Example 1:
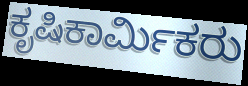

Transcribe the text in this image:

ಕೃಷಿಕಾರ್ಮಿಕರು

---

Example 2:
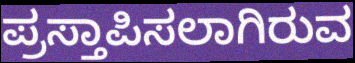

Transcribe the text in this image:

ಪ್ರಸ್ತಾಪಿಸಲಾಗಿರುವ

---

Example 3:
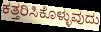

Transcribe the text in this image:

ಕತ್ತರಿಸಿಕೊಳ್ಳುವುದು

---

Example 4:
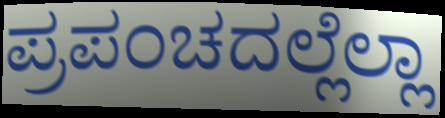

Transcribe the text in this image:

ಪ್ರಪಂಚದಲ್ಲೆಲ್ಲಾ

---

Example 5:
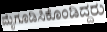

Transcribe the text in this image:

ಮೈಗೂಡಿಸಿಕೊಂಡಿದ್ದರು